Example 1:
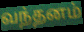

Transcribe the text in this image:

வந்தனம்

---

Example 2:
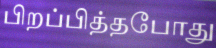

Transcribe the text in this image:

பிறப்பித்தபோது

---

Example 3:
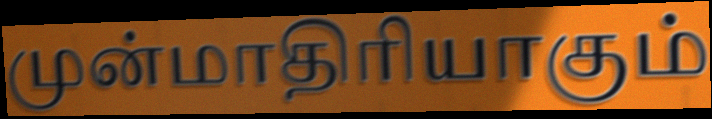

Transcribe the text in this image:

முன்மாதிரியாகும்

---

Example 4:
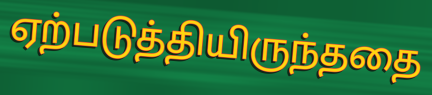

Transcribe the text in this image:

ஏற்படுத்தியிருந்ததை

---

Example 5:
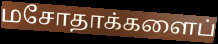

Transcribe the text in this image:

மசோதாக்களைப்